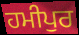
ਹਮੀਪੁਰ